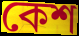
কেশ